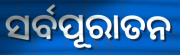
ସର୍ବପୂରାତନ